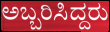
ಅಬ್ಬರಿಸಿದ್ದರು